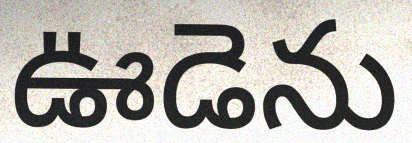
ఊడెను